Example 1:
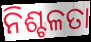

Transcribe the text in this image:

ନିଶ୍ଚଳତା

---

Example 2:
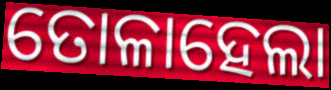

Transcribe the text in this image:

ତୋଳାହେଲା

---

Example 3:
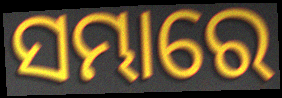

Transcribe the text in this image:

ସମ୍ଭାରେ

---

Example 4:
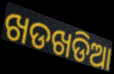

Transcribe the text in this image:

ଖଡଖଡିଆ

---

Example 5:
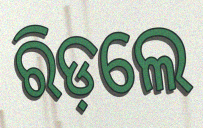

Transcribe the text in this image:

ରିଡ଼ଲେ